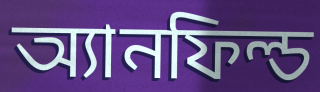
অ্যানফিল্ড